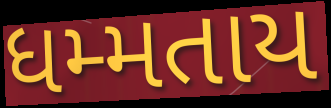
ધમ્મતાય